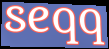
seqq